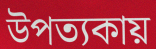
উপত্যকায়